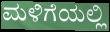
ಮಳಿಗೆಯಲ್ಲಿ